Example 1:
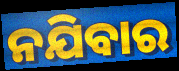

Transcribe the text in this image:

ନଯିବାର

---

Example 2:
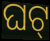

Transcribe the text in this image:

ଘଟ୍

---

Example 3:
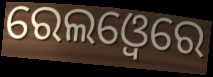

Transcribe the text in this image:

ରେଲଓ୍ୱେରେ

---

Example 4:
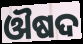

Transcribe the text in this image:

ଔଷଦ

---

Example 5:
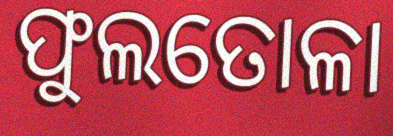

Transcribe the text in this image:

ଫୁଲତୋଳା